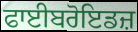
ਫਾਈਬਰੋਇਡਜ਼